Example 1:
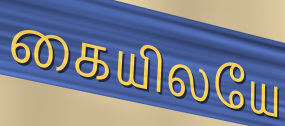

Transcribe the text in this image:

கையிலயே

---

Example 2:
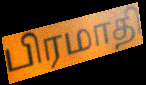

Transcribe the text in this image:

பிரமாதி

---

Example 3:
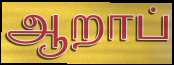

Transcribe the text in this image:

ஆறாப்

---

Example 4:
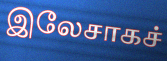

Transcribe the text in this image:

இலேசாகச்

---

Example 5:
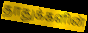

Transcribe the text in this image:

தாதுக்களின்